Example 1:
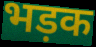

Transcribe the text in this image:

भड़क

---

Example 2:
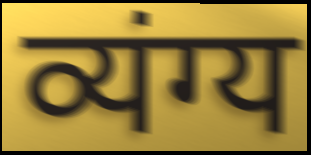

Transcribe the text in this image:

व्यंग्य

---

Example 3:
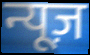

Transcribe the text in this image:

न्यूज़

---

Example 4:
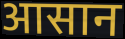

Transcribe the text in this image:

आसान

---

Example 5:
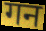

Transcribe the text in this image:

गन